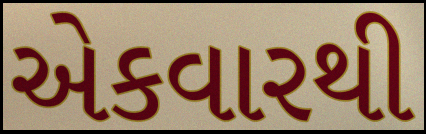
એકવારથી